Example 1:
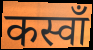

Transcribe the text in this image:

कस्वाँ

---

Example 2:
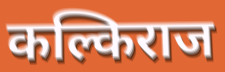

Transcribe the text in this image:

कल्किराज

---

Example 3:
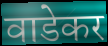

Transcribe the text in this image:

वाडेकर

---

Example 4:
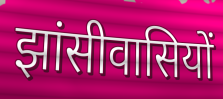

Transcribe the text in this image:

झांसीवासियों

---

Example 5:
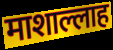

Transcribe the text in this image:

माशाल्लाह